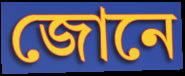
জোনে